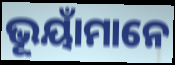
ଭୂୟାଁମାନେ